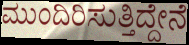
ಮುಂದಿರಿಸುತ್ತಿದ್ದೇನೆ